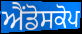
ਐਂਡੋਸਕੋਪ